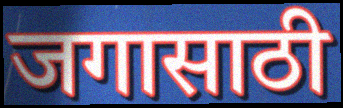
जगासाठी